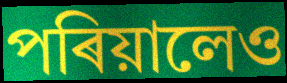
পৰিয়ালেও